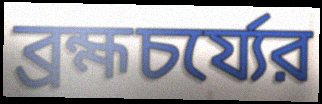
ব্রহ্মচর্য্যের